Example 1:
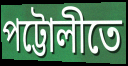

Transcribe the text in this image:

পট্টোলীতে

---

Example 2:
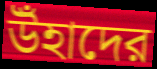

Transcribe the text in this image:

উঁহাদের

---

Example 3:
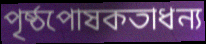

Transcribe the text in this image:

পৃষ্ঠপোষকতাধন্য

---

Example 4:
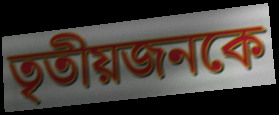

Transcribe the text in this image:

তৃতীয়জনকে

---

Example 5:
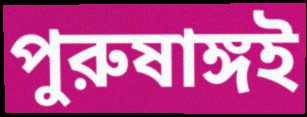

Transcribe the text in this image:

পুরুষাঙ্গই